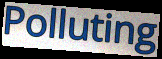
Polluting